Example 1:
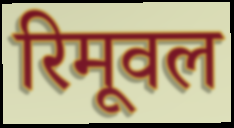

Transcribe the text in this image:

रिमूवल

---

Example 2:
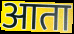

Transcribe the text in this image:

आता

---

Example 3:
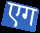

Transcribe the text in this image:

एग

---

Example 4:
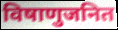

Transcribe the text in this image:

विषाणुजनित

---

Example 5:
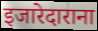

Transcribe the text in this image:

इजारेदाराना